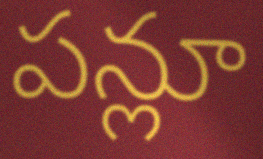
పన్లూ